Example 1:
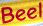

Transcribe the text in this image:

Beel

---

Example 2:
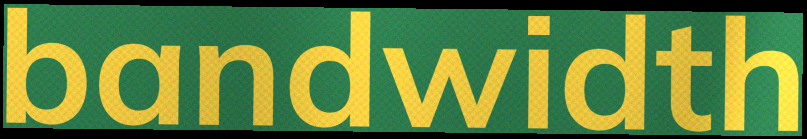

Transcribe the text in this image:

bandwidth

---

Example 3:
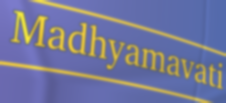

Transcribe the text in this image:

Madhyamavati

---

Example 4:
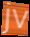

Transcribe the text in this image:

jv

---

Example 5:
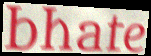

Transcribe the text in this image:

bhate